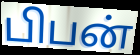
பிபன்